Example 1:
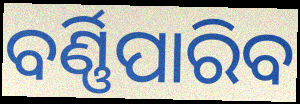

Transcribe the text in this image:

ବର୍ଣ୍ଣିପାରିବ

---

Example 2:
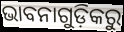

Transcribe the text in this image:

ଭାବନାଗୁଡ଼ିକରୁ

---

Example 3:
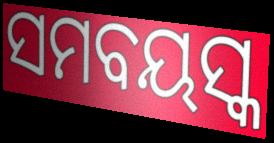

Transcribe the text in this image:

ସମବୟସ୍କ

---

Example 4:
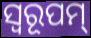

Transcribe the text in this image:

ସ୍ଵରୂପମ୍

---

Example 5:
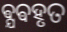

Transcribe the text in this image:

ଵ୍ଯଵହୃତ